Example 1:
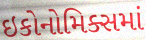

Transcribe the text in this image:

ઇકોનોમિક્સમાં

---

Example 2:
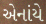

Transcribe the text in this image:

એનાંયે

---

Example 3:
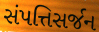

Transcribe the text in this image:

સંપત્તિસર્જન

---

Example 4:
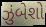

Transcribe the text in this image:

ઝુંબેશો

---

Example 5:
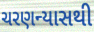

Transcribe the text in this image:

ચરણન્યાસથી